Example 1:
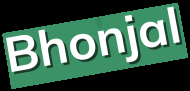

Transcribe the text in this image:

Bhonjal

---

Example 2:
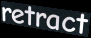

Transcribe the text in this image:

retract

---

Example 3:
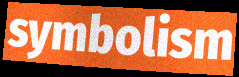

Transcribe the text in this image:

symbolism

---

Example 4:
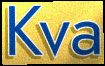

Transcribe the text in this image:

Kva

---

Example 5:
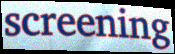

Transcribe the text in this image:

screening